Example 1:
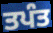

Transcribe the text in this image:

ਤਪੰਤ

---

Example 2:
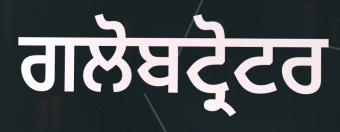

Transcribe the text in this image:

ਗਲੋਬਟ੍ਰੋਟਰ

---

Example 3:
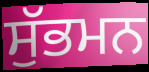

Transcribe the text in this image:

ਸੁੱਭਮਨ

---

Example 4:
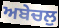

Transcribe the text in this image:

ਅਬੇਚਲੁ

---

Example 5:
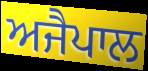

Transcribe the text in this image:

ਅਜੈਪਾਲ